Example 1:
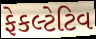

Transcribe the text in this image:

ફેકલ્ટેટિવ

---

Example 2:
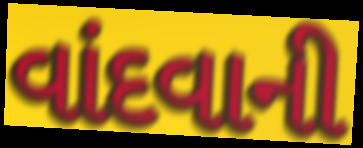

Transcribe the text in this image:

વાંદવાની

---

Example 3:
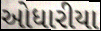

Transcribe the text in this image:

ઓધારીયા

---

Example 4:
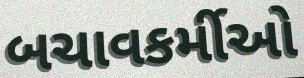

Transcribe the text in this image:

બચાવકર્મીઓ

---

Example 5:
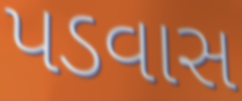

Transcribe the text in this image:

પડવાસ